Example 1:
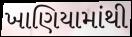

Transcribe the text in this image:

ખાણિયામાંથી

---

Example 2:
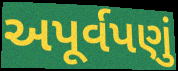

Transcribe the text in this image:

અપૂર્વપણું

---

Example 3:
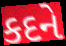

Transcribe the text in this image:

કદને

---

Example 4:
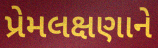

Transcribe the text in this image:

પ્રેમલક્ષણાને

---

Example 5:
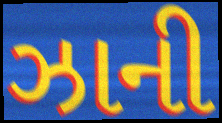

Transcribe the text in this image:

ઝાની